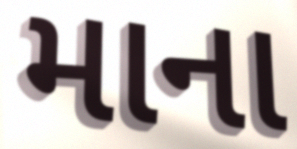
માના